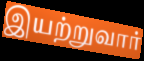
இயற்றுவார்